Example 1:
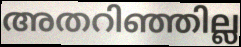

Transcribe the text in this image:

അതറിഞ്ഞില്ല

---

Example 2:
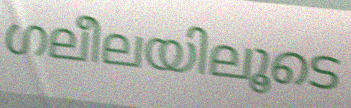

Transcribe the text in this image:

ഗലീലയിലൂടെ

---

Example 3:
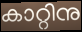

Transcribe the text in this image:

കാറ്റിനു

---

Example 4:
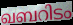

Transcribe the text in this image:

ഖബറിടം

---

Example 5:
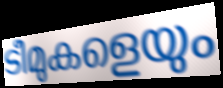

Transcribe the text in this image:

ടീമുകളെയും